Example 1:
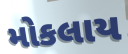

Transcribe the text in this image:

મોકલાય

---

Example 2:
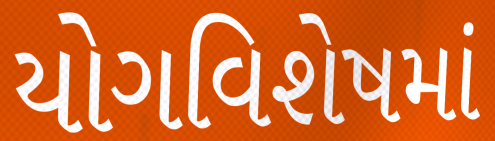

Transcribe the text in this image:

યોગવિશેષમાં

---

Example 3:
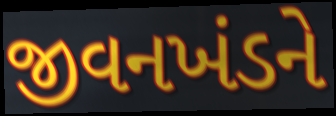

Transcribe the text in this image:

જીવનખંડને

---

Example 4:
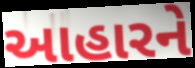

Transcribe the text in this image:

આહારને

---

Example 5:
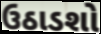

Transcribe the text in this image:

ઉઠાડશો